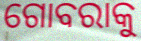
ଗୋବରାକୁ